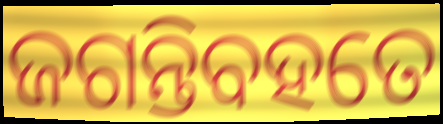
ଜଗନ୍ତିବହତେ